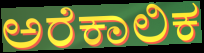
ಅರೆಕಾಲಿಕ